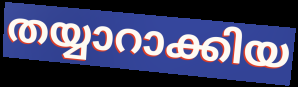
തയ്യാറാക്കിയ